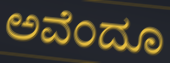
ಅವೆಂದೂ